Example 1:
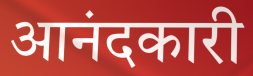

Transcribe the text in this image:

आनंदकारी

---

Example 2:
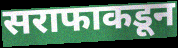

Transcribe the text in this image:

सराफाकडून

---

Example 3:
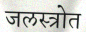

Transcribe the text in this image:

जलस्त्रोत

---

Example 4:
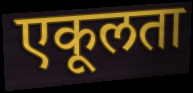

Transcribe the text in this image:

एकूलता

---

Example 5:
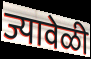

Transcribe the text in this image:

ज्यावेळी